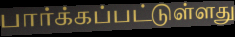
பார்க்கப்பட்டுள்ளது